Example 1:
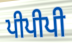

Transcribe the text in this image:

ਪੀਪੀਪੀ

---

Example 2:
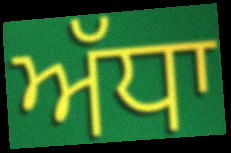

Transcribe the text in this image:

ਅੱਧਾ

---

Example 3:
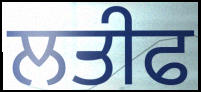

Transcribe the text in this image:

ਲਤੀਫ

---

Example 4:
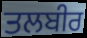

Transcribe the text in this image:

ਤਲਬੀਰ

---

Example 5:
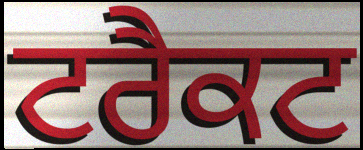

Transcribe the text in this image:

ਟਰੈਕਟ